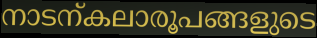
നാടന്കലാരൂപങ്ങളുടെ